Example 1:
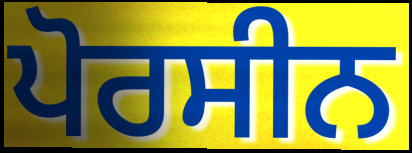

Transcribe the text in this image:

ਪੋਰਸੀਨ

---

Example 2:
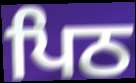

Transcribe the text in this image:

ਪਿਠ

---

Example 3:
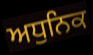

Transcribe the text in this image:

ਅਧੁਨਿਕ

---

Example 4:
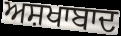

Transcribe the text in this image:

ਅਸ਼ਖਾਬਾਦ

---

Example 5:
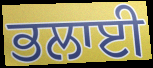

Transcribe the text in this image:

ਭਲਾਈ